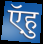
ऍहु